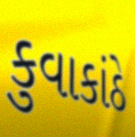
કુવાકાંઠે